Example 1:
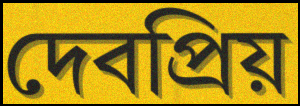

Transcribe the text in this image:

দেবপ্রিয়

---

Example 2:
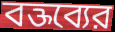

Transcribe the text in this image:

বক্তব্যের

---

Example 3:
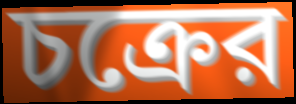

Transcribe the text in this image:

চক্রের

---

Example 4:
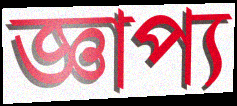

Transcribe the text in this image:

জ্ঞাপ্য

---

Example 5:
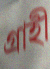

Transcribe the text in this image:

গ্রাহী